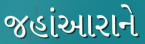
જહાંઆરાને